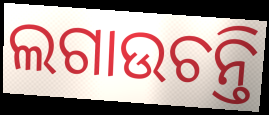
ଲଗାଉଚନ୍ତି